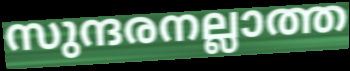
സുന്ദരനല്ലാത്ത